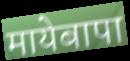
मायेबापा